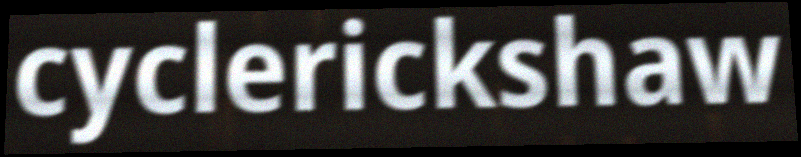
cyclerickshaw